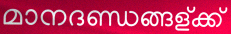
മാനദണ്ഡങ്ങള്ക്ക്